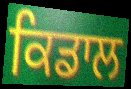
ਕਿਡਾਲ